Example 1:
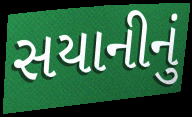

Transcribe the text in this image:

સયાનીનું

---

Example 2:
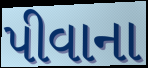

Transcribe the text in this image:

પીવાના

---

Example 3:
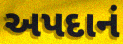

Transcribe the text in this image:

અપદાનં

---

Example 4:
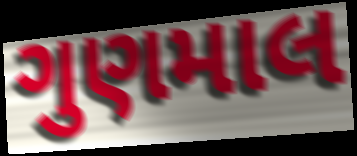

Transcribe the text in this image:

ગુણમાલ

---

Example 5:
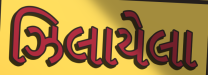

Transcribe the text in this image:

ઝિલાયેલા